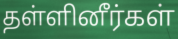
தள்ளினீர்கள்